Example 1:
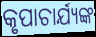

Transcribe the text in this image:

କୃପାଚାର୍ଯ୍ୟଙ୍କ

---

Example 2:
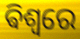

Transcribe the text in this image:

ଵିଶ୍ୱରେ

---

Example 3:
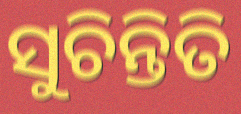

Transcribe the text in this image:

ସୁଚିନ୍ତିତି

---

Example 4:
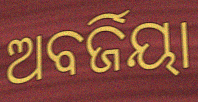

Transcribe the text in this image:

ଅବର୍ଜିୟା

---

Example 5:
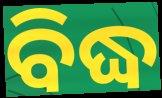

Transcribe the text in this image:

ବିଦ୍ଧ